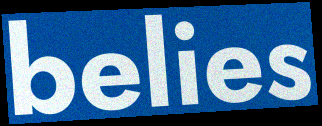
belies